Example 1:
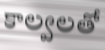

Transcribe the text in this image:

కాల్వలతో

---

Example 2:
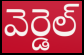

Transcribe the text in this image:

వెర్డెల్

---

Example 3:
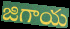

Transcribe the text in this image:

జిగాయ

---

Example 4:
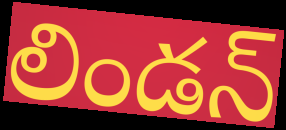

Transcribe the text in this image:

లిండన్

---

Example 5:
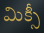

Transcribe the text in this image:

మిక్సీ